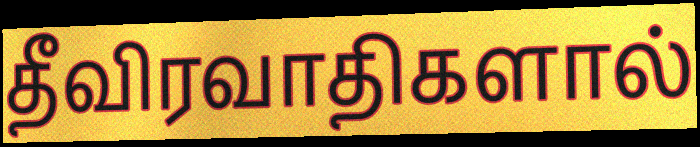
தீவிரவாதிகளால்